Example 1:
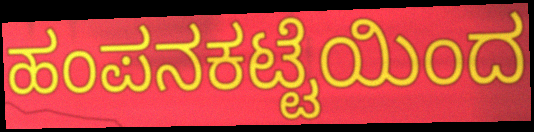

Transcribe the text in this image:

ಹಂಪನಕಟ್ಟೆಯಿಂದ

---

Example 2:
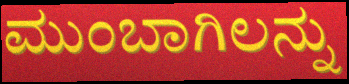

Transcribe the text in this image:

ಮುಂಬಾಗಿಲನ್ನು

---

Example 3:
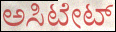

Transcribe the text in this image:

ಅಸಿಟೇಟ್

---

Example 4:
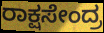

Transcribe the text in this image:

ರಾಕ್ಷಸೇಂದ್ರ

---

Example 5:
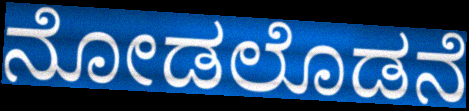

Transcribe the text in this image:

ನೋಡಲೊಡನೆ